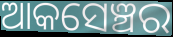
ଆକସେଞ୍ଚର